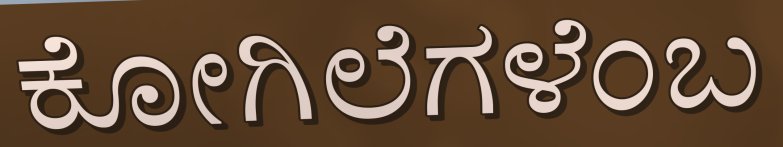
ಕೋಗಿಲೆಗಳೆಂಬ